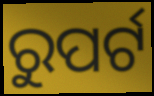
ରୁପର୍ଟ